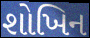
શોખિન